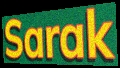
Sarak